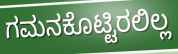
ಗಮನಕೊಟ್ಟಿರಲಿಲ್ಲ